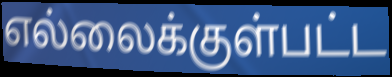
எல்லைக்குள்பட்ட